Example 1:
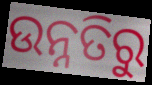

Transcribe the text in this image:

ଉନ୍ନତିରୁ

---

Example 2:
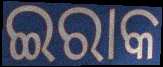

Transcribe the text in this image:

ଇରାକ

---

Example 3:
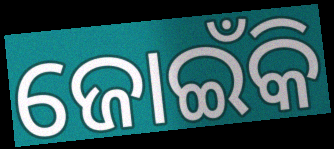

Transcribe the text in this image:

ଜୋଇଁକି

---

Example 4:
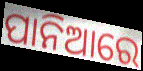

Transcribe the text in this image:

ପାନିଆରେ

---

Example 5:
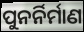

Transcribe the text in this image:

ପୁନର୍ନିର୍ମାଣ